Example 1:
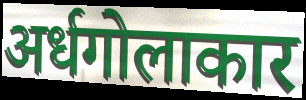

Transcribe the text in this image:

अर्धगोलाकार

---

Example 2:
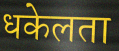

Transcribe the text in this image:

धकेलता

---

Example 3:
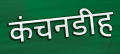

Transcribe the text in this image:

कंचनडीह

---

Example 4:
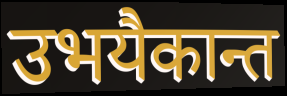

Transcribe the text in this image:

उभयैकान्त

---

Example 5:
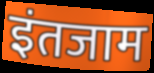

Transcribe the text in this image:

इंतजाम